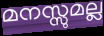
മനസ്സുമല്ല